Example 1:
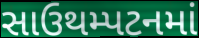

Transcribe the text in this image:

સાઉથમ્પટનમાં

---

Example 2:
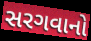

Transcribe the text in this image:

સરગવાનો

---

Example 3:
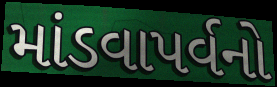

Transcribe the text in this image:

માંડવાપર્વનો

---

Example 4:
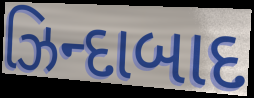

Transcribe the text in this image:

ઝિન્દાબાદ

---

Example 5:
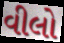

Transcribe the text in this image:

વીલો